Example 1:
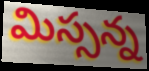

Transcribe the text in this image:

మిస్సన్న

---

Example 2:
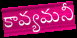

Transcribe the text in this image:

కావ్యమనీ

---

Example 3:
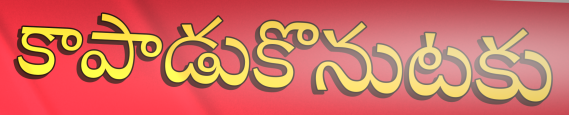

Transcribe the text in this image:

కాపాడుకొనుటకు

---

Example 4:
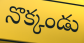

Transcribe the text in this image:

నొక్కండు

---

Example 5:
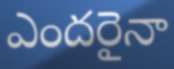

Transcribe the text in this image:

ఎందరైనా